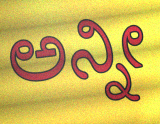
ಅನ್ನೀ